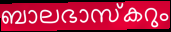
ബാലഭാസ്കറും